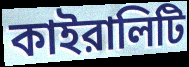
কাইরালিটি